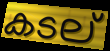
കടല്